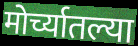
मोर्च्यातल्या